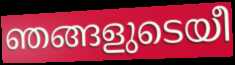
ഞങ്ങളുടെയീ